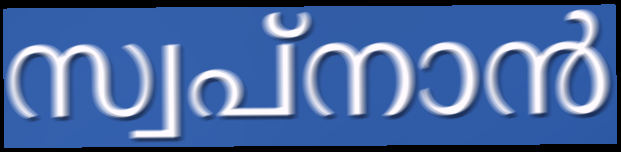
സ്വപ്നാൻ